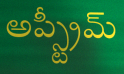
అప్స్ట్రీమ్